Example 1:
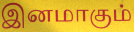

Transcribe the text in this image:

இனமாகும்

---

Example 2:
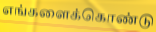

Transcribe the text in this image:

எங்களைக்கொண்டு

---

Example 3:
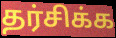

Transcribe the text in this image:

தர்சிக்க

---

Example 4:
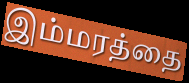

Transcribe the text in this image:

இம்மரத்தை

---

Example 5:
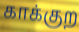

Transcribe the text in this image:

காக்குற